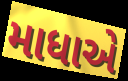
માધાએ